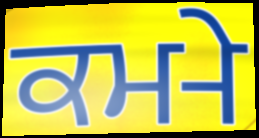
ਕਮ੍ਮੇ